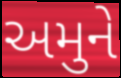
અમુને